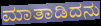
ಮಾತಾಡಿದನು